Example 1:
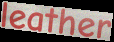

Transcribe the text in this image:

leather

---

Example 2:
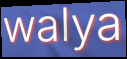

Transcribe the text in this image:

walya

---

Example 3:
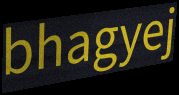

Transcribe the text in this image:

bhagyej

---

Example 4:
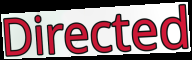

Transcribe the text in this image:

Directed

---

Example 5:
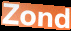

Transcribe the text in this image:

Zond